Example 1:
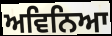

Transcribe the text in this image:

ਅਵਿਨਿਆ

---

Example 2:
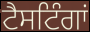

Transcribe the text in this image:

ਟੈਸਟਿੰਗਾਂ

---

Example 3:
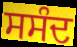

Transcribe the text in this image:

ਸਸੰਦ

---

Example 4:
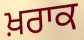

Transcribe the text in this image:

ਖ਼ਰਾਕ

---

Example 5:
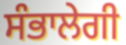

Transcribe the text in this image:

ਸੰਭਾਲੇਗੀ